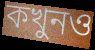
কখুনও